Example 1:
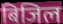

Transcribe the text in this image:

बिजिल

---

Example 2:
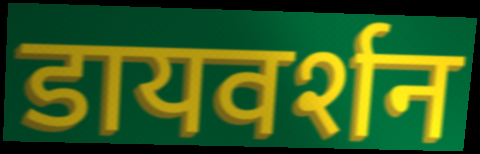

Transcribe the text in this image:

डायवर्शन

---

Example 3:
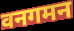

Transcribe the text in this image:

वनगमन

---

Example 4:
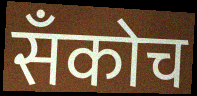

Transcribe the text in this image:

सँकोच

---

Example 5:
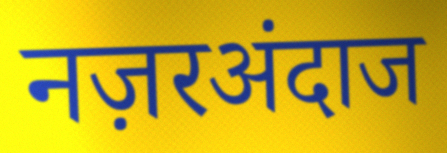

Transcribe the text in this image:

नज़रअंदाज